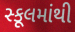
સ્કૂલમાંથી